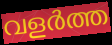
വളർത്ത